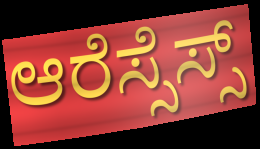
ಆರೆಸ್ಸೆಸ್ಸ್